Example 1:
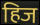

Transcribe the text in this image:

हिज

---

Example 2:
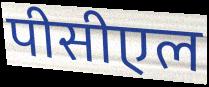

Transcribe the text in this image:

पीसीएल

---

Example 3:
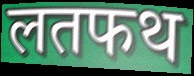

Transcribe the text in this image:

लतफथ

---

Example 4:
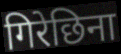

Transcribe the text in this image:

गिरेछिना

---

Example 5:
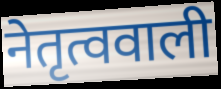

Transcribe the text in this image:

नेतृत्ववाली